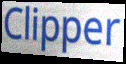
Clipper